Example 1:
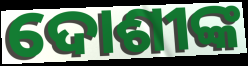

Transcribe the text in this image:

ଦୋଶୀଙ୍କ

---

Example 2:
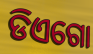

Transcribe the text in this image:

ଡିଏଗୋ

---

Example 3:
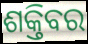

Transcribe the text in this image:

ଶକ୍ତିବର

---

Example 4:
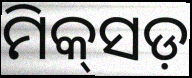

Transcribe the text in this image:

ମିକ୍‌ସଡ଼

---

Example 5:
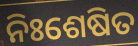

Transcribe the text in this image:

ନିଃଶେଷିତ